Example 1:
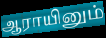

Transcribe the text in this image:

ஆராயினும்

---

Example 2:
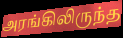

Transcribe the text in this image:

அரங்கிலிருந்த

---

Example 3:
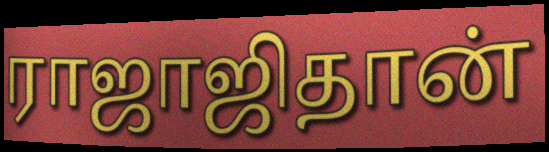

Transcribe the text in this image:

ராஜாஜிதான்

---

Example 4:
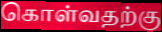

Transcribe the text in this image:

கொள்வதற்கு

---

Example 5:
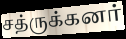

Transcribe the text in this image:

சத்ருக்கனர்